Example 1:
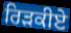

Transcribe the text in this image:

ਰਿੜਕੀਏ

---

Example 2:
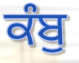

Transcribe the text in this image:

ਕੰਬੁ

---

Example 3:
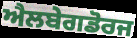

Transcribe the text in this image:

ਐਲਬੇਗਡੋਰਜ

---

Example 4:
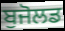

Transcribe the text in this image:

ਬੁਜੋਲਡ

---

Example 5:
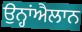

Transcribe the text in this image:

ਉਨ੍ਹਾਂਐਲਾਨ